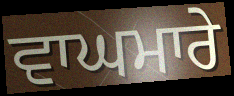
ਵਾਘਮਾਰੇ